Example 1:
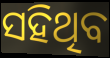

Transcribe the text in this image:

ସହିଥିବ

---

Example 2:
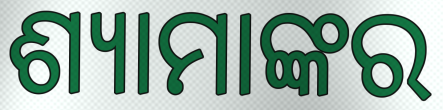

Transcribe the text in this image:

ଶ୍ୟାମାଙ୍କର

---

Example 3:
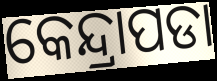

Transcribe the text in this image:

କେନ୍ଦ୍ରାପଡା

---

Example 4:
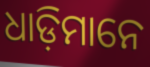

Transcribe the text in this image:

ଧାଡ଼ିମାନେ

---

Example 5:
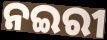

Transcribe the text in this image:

ନଇରୀ